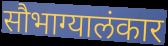
सौभाग्यालंकार